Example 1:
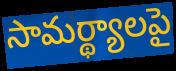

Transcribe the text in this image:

సామర్థ్యాలపై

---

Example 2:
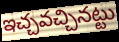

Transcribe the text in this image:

ఇచ్చవచ్చినట్టు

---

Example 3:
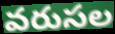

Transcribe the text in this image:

వరుసల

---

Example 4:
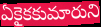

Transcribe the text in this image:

ఏకైకకుమారుని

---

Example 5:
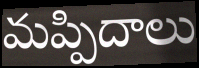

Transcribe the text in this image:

మప్పిదాలు